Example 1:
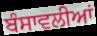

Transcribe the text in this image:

ਬੰਸਾਵਲੀਆਂ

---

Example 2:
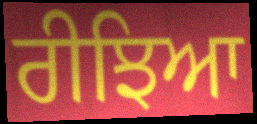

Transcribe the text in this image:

ਰੀਝਿਆ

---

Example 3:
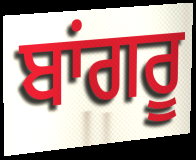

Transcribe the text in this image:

ਬਾਂਗਰੂ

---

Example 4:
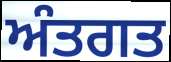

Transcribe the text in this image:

ਅੰਤਗਤ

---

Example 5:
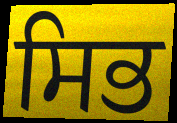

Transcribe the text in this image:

ਸਿਭ